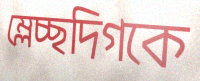
ম্লেচ্ছদিগকে